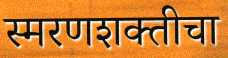
स्मरणशक्तीचा